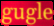
gugle